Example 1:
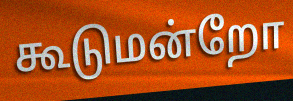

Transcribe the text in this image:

கூடுமன்றோ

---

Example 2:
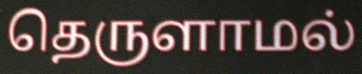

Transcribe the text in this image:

தெருளாமல்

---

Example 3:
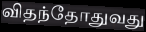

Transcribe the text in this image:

விதந்தோதுவது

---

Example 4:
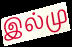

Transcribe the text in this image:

இல்மு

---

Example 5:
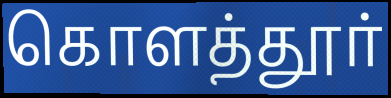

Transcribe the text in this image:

கொளத்தூர்